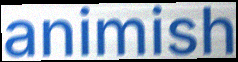
animish